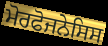
ਮੋਰਫੋਜਨੇਸਿਸ